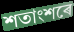
শতাংশৰে